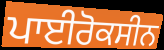
ਪਾਈਰੋਕਸੀਨ